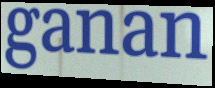
ganan